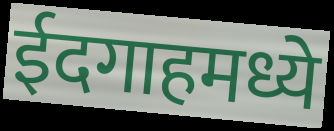
ईदगाहमध्ये